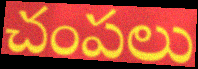
చంపలు